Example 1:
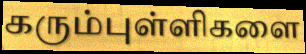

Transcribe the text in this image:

கரும்புள்ளிகளை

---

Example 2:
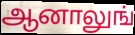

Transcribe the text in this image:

ஆனாலுங்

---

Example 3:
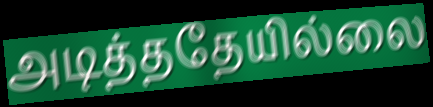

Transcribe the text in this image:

அடித்ததேயில்லை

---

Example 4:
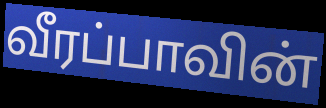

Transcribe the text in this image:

வீரப்பாவின்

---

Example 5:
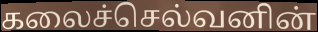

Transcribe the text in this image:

கலைச்செல்வனின்